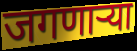
जगणाऱ्या